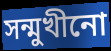
সন্মুখীনো